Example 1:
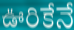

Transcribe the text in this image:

ఊరికేనే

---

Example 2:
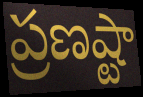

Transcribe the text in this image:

ప్రణష్టా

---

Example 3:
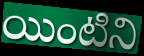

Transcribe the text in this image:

యింటిని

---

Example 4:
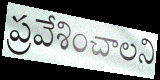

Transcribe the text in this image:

ప్రవేశించాలని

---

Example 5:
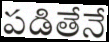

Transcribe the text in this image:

పడితేనే